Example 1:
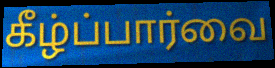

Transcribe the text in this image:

கீழ்ப்பார்வை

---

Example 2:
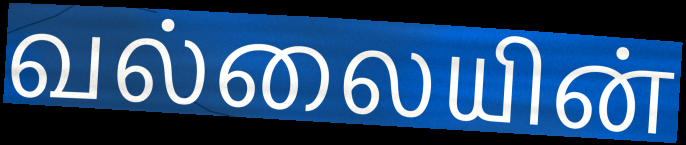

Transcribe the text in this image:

வல்லையின்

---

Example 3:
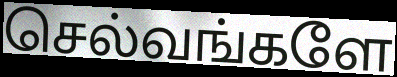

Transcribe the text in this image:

செல்வங்களே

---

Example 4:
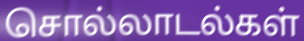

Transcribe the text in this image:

சொல்லாடல்கள்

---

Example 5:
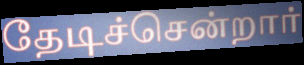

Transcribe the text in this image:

தேடிச்சென்றார்